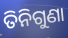
ତିନିଗୁଣା